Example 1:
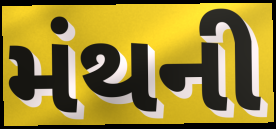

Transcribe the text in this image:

મંથની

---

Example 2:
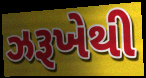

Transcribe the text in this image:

ઝરૂખેથી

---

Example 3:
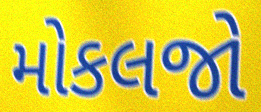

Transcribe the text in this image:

મોકલજો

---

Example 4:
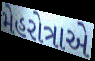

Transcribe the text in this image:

મેહરોત્રાએ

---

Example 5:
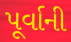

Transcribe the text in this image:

પૂર્વાની